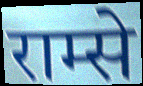
राम्से